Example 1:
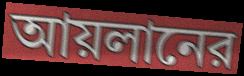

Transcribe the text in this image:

আয়লানের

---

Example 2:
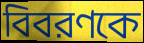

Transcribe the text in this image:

বিবরণকে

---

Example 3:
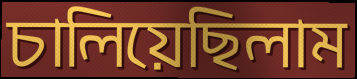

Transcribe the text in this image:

চালিয়েছিলাম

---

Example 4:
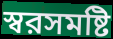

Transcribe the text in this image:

স্বরসমষ্টি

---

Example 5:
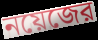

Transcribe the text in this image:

নয়েজের